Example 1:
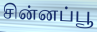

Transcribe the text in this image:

சின்னப்பூ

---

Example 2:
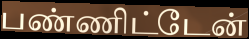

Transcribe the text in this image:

பண்ணிட்டேன்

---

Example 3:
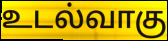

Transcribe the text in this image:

உடல்வாகு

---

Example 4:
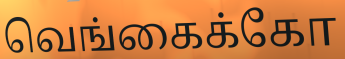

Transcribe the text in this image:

வெங்கைக்கோ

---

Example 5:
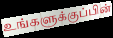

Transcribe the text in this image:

உங்களுக்குப்பின்